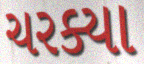
ચરક્યા